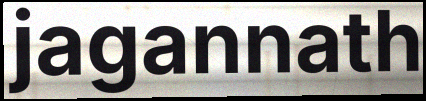
jagannath